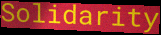
Solidarity